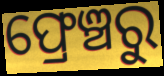
ଫ୍ରେଞ୍ଚରୁ